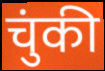
चुंकी